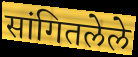
सांगितलेले